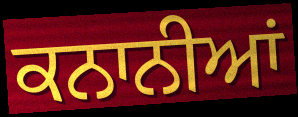
ਕਨਾਨੀਆਂ